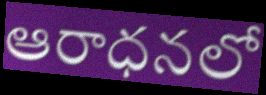
ఆరాధనలో